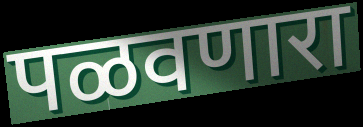
पळवणारा